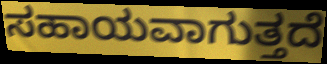
ಸಹಾಯವಾಗುತ್ತದೆ